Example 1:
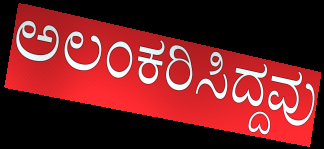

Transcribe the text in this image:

ಅಲಂಕರಿಸಿದ್ದವು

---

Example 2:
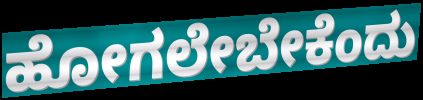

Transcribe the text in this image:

ಹೋಗಲೇಬೇಕೆಂದು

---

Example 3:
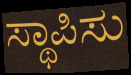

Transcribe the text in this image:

ಸ್ಥಾಪಿಸು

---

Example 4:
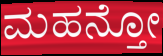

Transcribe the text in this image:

ಮಹನ್ತೋ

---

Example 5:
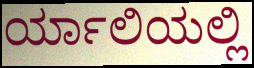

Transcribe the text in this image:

ರ್ಯಾಲಿಯಲ್ಲಿ